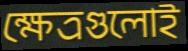
ক্ষেত্রগুলোই